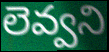
లెవ్వని